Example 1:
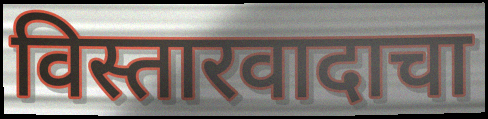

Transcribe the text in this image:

विस्तारवादाचा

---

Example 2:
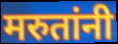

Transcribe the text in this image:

मरुतांनी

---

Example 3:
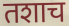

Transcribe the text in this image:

तशाच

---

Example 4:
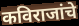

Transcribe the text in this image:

कविराजांचे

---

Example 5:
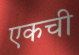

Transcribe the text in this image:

एकची